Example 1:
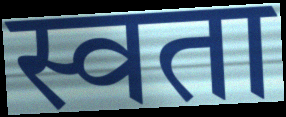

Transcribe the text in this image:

स्वता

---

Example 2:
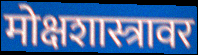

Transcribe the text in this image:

मोक्षशास्त्रावर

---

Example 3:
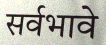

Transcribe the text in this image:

सर्वभावे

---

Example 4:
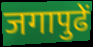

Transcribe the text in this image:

जगापुढें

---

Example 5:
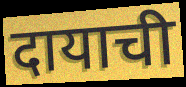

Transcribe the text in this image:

दायाची